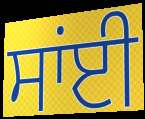
ਸਾਂਈ